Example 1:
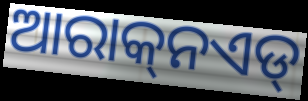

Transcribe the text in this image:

ଆରାକ୍‌ନଏଡ୍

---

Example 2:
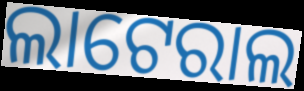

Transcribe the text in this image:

ଲାଟେରାଲ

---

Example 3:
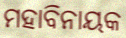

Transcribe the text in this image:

ମହାବିନାୟକ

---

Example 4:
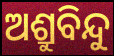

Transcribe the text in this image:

ଅଶ୍ରୁବିନ୍ଦୁ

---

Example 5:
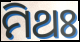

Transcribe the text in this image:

ମିଥଃ